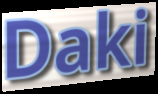
Daki